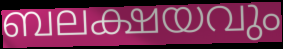
ബലക്ഷയവും